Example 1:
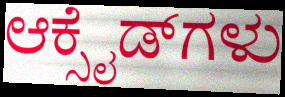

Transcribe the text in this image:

ಆಕ್ಸೈಡ್‌ಗಳು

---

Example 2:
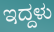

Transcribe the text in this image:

ಇದ್ದಳು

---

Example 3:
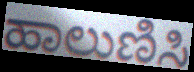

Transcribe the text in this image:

ಹಾಲುಣಿಸಿ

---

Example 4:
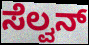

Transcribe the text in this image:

ಸೆಲ್ವನ್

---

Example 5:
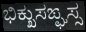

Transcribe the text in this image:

ಭಿಕ್ಖುಸಙ್ಘಸ್ಸ